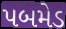
પબમેડ